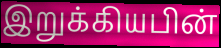
இறுக்கியபின்